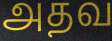
அதவ